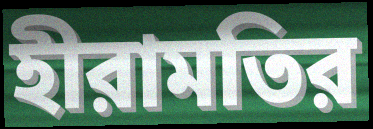
হীরামতির